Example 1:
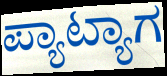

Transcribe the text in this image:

ಪ್ಯಾಟ್ಯಾಗ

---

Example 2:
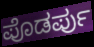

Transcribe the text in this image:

ಪೊಡರ್ಪು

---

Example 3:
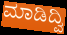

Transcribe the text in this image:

ಮಾಡಿದ್ವಿ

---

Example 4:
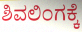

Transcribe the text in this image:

ಶಿವಲಿಂಗಕ್ಕೆ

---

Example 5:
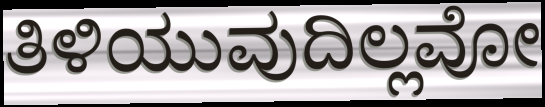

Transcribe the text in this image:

ತಿಳಿಯುವುದಿಲ್ಲವೋ